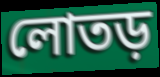
লোতড়